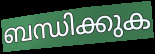
ബന്ധിക്കുക